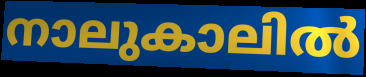
നാലുകാലിൽ